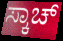
ಸ್ಕಾಚ್